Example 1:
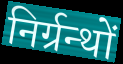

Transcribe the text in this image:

निर्ग्रन्थों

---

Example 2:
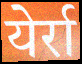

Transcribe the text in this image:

येर्रा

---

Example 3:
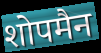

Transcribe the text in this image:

शोपमैन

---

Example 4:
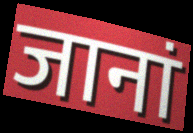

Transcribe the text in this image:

जानां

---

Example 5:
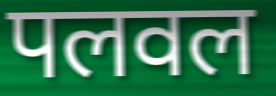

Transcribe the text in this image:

पलवल